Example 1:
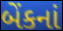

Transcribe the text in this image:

બેંકનાં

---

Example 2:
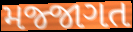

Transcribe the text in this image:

મજ્જાગત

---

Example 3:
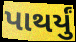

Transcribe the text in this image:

પાથર્યું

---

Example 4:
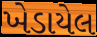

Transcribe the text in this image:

ખેડાયેલ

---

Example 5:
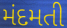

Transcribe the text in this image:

મંદમતી